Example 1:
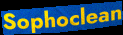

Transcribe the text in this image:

Sophoclean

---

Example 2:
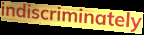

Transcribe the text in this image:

indiscriminately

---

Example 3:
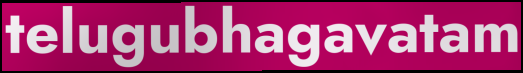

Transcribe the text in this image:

telugubhagavatam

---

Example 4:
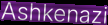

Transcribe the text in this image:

Ashkenazi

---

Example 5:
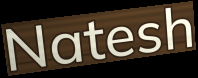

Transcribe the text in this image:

Natesh